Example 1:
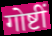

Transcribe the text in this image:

गोष्टीं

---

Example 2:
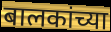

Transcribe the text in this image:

बालकांच्या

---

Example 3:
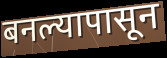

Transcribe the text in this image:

बनल्यापासून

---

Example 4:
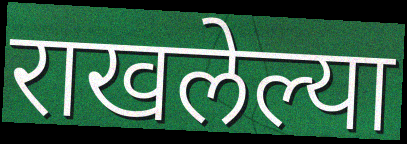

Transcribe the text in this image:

राखलेल्या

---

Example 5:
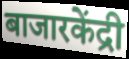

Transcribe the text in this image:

बाजारकेंद्री